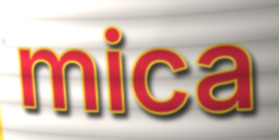
mica